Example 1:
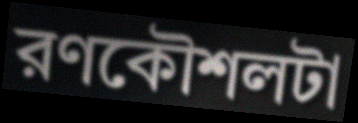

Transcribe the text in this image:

রণকৌশলটা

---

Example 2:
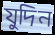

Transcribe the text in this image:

যুদিন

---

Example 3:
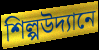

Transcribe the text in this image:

শিল্পউদ্যানে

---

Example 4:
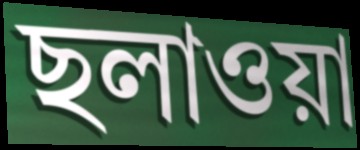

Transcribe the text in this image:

ছলাওয়া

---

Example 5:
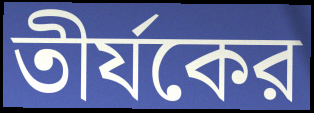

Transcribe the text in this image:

তীর্যকের